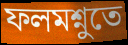
ফলমশ্নুতে